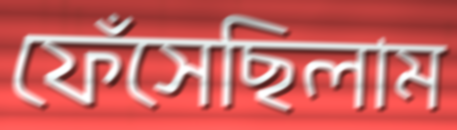
ফেঁসেছিলাম